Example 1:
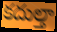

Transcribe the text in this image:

కదుల్తా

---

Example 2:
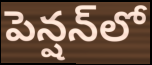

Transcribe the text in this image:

పెన్షన్‌లో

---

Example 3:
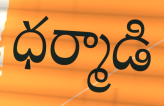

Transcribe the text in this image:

ధర్మాడి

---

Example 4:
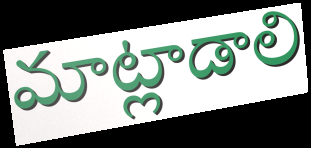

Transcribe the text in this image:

మాట్లాడాలి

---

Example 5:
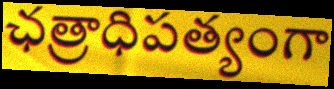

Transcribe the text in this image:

ఛత్రాధిపత్యంగా